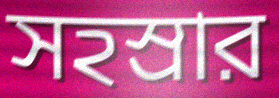
সহস্রার